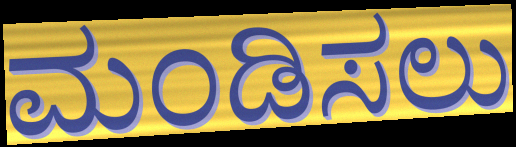
ಮಂಡಿಸಲು